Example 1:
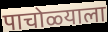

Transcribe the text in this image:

पाचोळ्याला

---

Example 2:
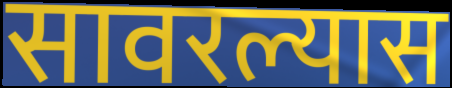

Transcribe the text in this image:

सावरल्यास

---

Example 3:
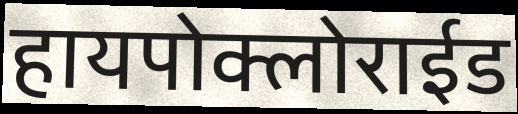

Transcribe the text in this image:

हायपोक्लोराईड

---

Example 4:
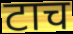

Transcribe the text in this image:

टाच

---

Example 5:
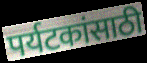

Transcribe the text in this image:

पर्यटकांसाठी